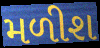
મળીશ